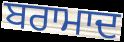
ਬਰਾਮਾਦ